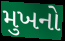
મુખનો